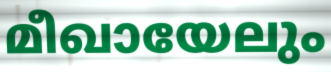
മീഖായേലും